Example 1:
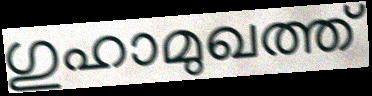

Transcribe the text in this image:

ഗുഹാമുഖത്ത്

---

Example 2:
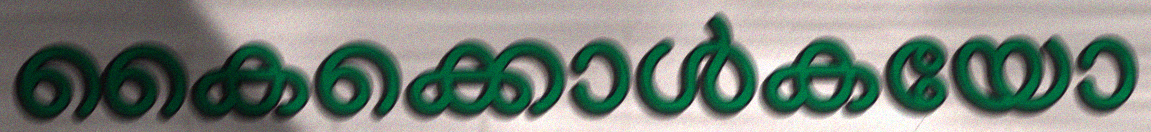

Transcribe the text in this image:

കൈക്കൊൾകയോ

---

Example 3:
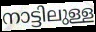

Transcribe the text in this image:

നാട്ടിലുള്ള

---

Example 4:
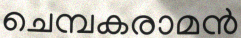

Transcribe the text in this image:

ചെമ്പകരാമൻ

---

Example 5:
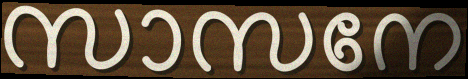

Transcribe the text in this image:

സാസനേ